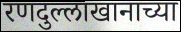
रणदुल्लाखानाच्या